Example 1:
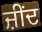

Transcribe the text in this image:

ਜ਼ੀਂਦ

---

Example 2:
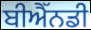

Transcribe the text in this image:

ਬੀਐੱਨਡੀ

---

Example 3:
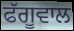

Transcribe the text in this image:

ਫੱਗੂਵਾਲ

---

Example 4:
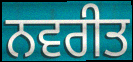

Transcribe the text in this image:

ਨਵਰੀਤ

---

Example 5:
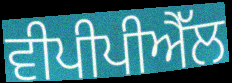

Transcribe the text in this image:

ਵੀਪੀਪੀਐੱਲ